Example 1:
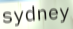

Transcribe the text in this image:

sydney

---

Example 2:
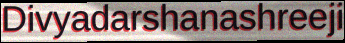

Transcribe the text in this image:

Divyadarshanashreeji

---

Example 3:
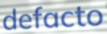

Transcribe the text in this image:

defacto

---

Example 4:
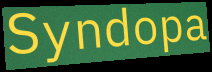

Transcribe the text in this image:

Syndopa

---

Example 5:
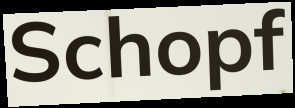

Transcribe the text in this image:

Schopf